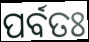
ପର୍ବତଃ